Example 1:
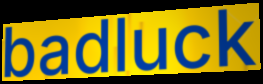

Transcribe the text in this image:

badluck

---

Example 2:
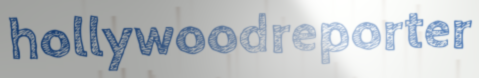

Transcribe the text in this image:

hollywoodreporter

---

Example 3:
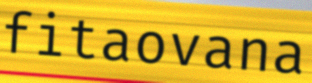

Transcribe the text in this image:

fitaovana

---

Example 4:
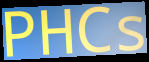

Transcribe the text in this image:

PHCs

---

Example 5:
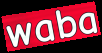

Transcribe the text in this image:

waba